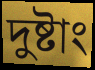
দুষ্টাং